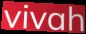
vivah